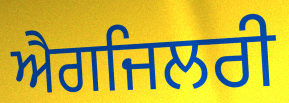
ਐਗਜਿਲਰੀ